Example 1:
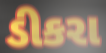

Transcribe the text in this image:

ડીકરા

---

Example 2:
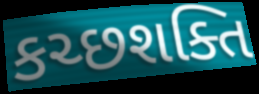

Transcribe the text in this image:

કચ્છશક્તિ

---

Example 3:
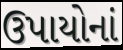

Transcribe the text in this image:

ઉપાયોનાં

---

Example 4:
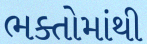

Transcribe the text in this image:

ભક્તોમાંથી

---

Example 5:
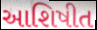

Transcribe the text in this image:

આશિષીત